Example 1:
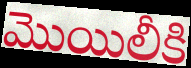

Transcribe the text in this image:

మొయిలీకి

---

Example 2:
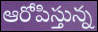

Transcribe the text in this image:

ఆరోపిస్తున్న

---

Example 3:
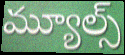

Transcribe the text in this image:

మ్యూల్స్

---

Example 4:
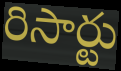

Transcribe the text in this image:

రిసార్టు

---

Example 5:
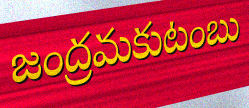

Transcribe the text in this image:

జంద్రమకుటంబు